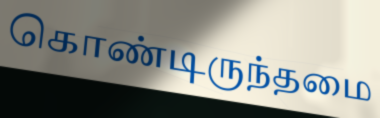
கொண்டிருந்தமை